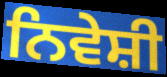
ਨਿਵੇਸ਼ੀ